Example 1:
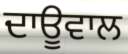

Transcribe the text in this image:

ਦਾਊਵਾਲ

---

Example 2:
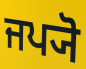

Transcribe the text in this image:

ਜਪ੍ਯੋ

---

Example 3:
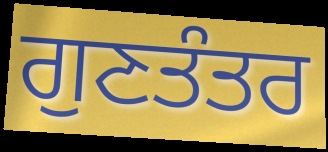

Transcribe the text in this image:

ਗੁਣਤੰਤਰ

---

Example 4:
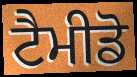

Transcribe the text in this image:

ਟੈਮੀਡੋ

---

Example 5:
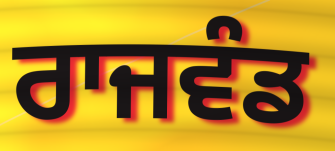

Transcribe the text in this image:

ਰਾਜਵੰਡ